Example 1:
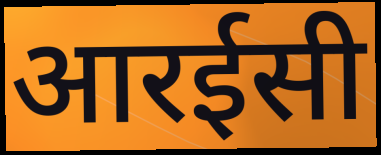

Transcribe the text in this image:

आरईसी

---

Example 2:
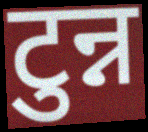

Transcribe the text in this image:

टुन्न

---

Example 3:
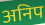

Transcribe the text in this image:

अनिप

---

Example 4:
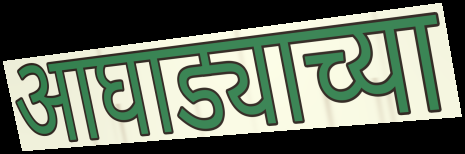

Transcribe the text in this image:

आघाड्याच्या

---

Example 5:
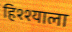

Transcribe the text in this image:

हिश्श्याला